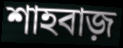
শাহবাজ়